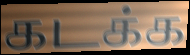
கடக்க